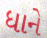
ધાને